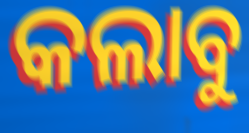
କଲାବୁ